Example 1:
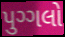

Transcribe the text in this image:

પુગ્ગલો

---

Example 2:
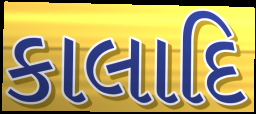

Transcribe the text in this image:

કાલાદિ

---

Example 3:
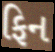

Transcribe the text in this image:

ફિન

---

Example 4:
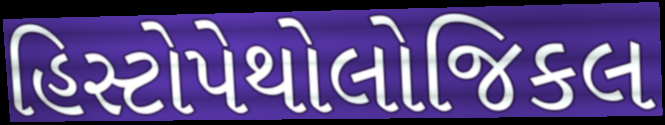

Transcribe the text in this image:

હિસ્ટોપેથોલોજિકલ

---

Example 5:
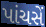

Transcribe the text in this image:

પાંચસેં